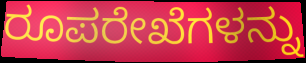
ರೂಪರೇಖೆಗಳನ್ನು